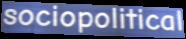
sociopolitical